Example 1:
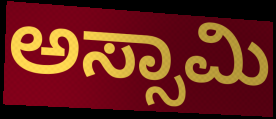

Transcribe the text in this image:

ಅಸ್ಸಾಮಿ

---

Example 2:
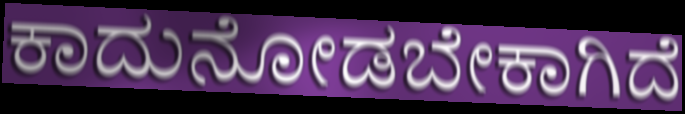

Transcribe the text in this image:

ಕಾದುನೋಡಬೇಕಾಗಿದೆ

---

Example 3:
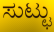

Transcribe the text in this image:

ಸುಟ್ಟು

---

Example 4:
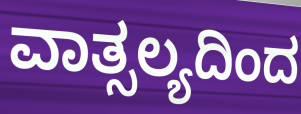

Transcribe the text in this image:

ವಾತ್ಸಲ್ಯದಿಂದ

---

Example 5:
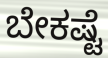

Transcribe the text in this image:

ಬೇಕಷ್ಟೆ